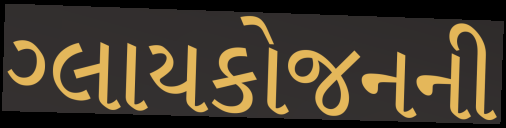
ગ્લાયકોજનની